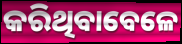
କରିଥିବାବେଳେ